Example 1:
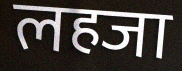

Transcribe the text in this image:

लहजा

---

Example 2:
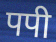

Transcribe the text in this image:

पपी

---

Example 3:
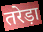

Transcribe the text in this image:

तरेड़ा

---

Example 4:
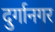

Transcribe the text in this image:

दुर्गानगर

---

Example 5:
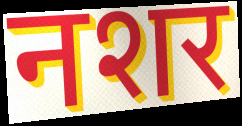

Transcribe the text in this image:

नशर